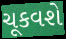
ચૂકવશે